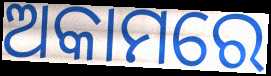
ଅକାମରେ